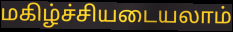
மகிழ்ச்சியடையலாம்